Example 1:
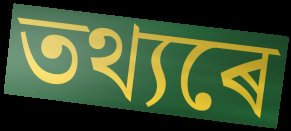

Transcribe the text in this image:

তথ্যৰে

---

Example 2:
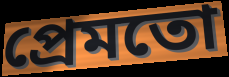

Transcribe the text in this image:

প্ৰেমতো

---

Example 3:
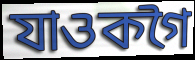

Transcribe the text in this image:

যাওকগৈ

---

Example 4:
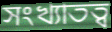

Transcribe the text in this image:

সংখ্যাতত্ব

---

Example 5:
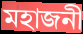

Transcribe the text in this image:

মহাজনী